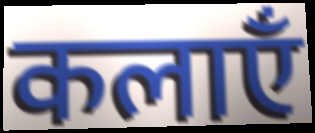
कलाएँ